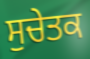
ਸੁਚੇਤਕ